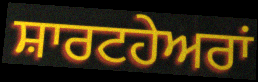
ਸ਼ਾਰਟਹੇਅਰਾਂ